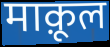
माक़ूल